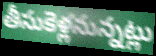
తీసుకెళ్లనున్నట్లు